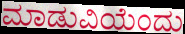
ಮಾಡುವಿಯೆಂದು